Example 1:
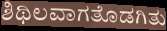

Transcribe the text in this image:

ಶಿಥಿಲವಾಗತೊಡಗಿತು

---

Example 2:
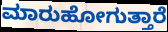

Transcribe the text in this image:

ಮಾರುಹೋಗುತ್ತಾರೆ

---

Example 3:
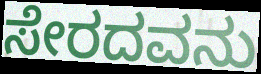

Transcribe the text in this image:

ಸೇರದವನು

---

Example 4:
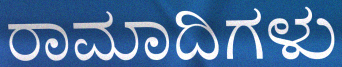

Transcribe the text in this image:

ರಾಮಾದಿಗಳು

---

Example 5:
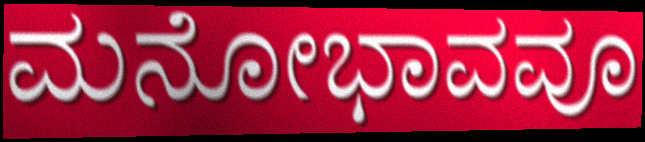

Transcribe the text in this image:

ಮನೋಭಾವವೂ